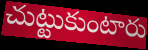
చుట్టుకుంటారు